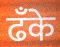
ढँके